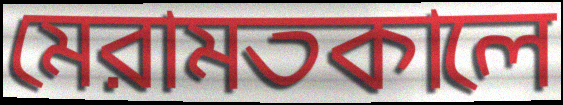
মেরামতকালে